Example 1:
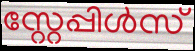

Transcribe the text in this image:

സ്റ്റേപ്പിൾസ്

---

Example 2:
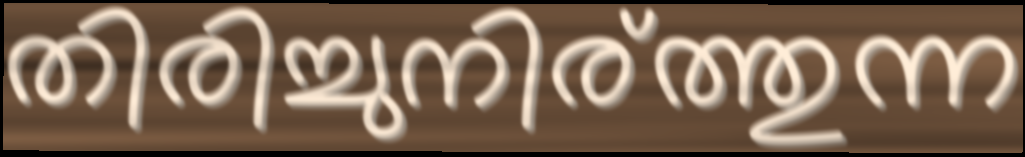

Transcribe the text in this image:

തിരിച്ചുനിര്ത്തുന്ന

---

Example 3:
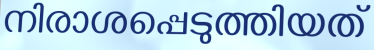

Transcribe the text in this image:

നിരാശപ്പെടുത്തിയത്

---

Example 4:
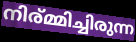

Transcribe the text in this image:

നിര്മ്മിച്ചിരുന്ന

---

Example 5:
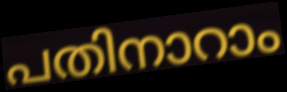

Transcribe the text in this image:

പതിനാറാം